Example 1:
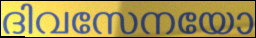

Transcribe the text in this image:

ദിവസേനയോ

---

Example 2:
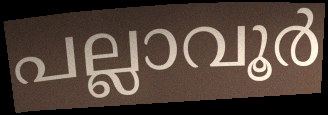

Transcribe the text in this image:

പല്ലാവൂർ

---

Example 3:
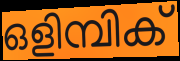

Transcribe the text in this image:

ഒളിമ്പിക്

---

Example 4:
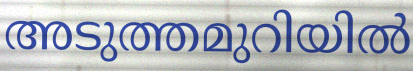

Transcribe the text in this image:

അടുത്തമുറിയിൽ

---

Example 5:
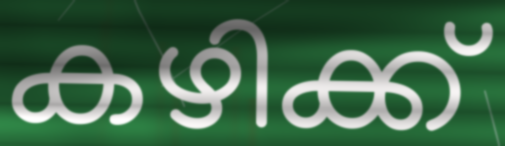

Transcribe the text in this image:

കഴിക്ക്